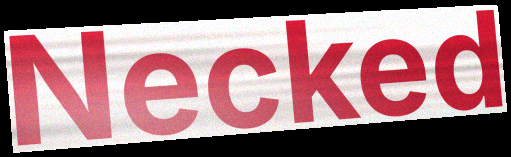
Necked